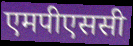
एमपीएससी